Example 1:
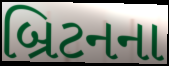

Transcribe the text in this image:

બ્રિટનના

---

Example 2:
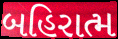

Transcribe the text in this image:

બહિરાત્મ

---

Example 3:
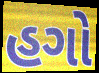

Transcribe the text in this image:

હગો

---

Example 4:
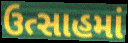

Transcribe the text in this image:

ઉત્સાહમાં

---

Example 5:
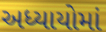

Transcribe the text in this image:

અધ્યાયોમાં